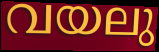
വയലു